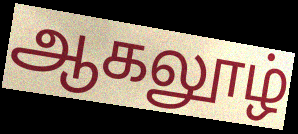
ஆகலூழ்